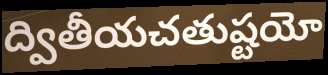
ద్వితీయచతుష్టయో